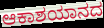
ಆಕಾಶಯಾನದ